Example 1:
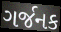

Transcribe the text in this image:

ગર્જનક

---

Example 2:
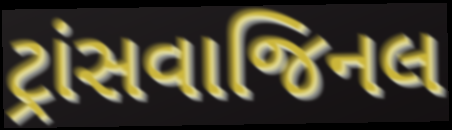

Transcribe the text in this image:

ટ્રાંસવાજિનલ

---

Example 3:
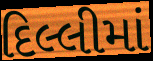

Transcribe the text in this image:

દિલ્લીમાં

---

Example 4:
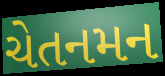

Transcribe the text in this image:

ચેતનમન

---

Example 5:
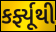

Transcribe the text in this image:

કર્ફ્યૂથી